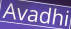
Avadhi